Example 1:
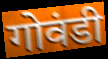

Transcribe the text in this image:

गोवंडी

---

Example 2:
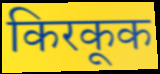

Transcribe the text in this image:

किरकूक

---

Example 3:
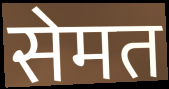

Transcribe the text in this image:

सेमत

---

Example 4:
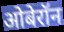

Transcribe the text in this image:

ओबेरॉन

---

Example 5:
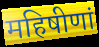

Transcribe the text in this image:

महिषीणां